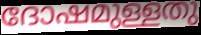
ദോഷമുള്ളതു